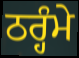
ਠਰ੍ਹੰਮੇ